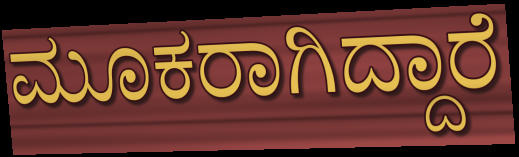
ಮೂಕರಾಗಿದ್ದಾರೆ